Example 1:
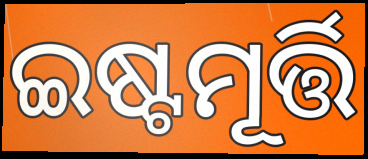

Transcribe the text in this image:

ଇଷ୍ଟମୂର୍ତ୍ତି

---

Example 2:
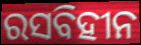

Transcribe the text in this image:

ରସବିହୀନ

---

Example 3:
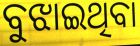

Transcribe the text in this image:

ବୁଝାଇଥିବା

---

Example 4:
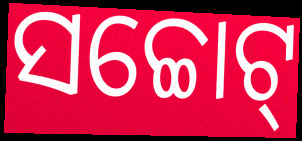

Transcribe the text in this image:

ସଚ୍ଚୋଟ୍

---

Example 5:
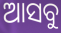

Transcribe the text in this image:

ଆସବୁ